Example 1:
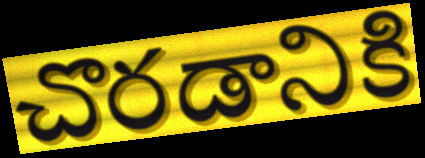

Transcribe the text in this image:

చొరడానికి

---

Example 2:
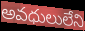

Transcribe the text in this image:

అవధులులేని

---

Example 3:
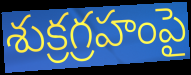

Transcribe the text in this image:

శుక్రగ్రహంపై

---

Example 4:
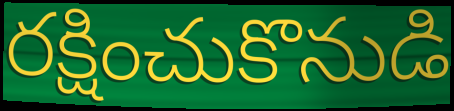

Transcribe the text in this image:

రక్షించుకొనుడి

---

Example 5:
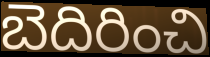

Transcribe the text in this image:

బెదిరించి